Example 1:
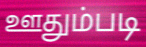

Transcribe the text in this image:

ஊதும்படி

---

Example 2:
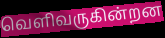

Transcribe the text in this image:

வெளிவருகின்றன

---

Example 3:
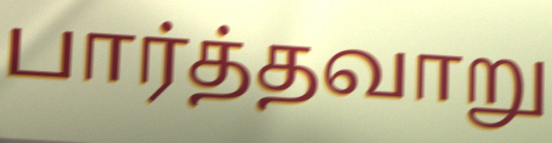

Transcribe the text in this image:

பார்த்தவாறு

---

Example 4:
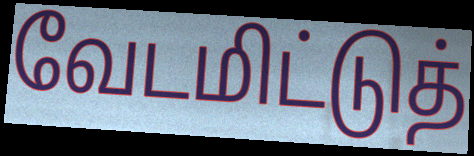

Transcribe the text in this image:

வேடமிட்டுத்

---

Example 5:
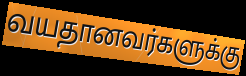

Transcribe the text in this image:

வயதானவர்களுக்கு